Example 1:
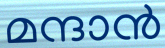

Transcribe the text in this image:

മന്ദാൻ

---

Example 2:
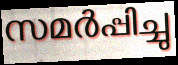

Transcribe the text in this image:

സമർപ്പിച്ചു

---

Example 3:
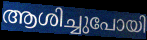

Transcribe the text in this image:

ആശിച്ചുപോയി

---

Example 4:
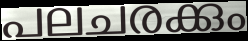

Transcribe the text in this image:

പലചരക്കും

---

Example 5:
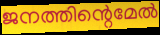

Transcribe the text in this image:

ജനത്തിന്റെമേൽ